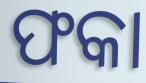
ଫକା